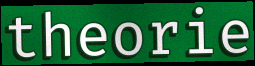
theorie